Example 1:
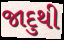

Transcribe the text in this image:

જાદુથી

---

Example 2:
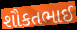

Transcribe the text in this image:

શૌકતભાઈ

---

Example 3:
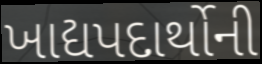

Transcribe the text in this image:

ખાદ્યપદાર્થોની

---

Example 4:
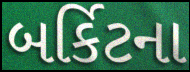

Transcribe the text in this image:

બર્કિટના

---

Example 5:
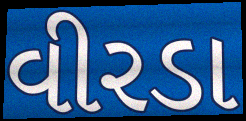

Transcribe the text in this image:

વીરડા